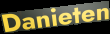
Danieten